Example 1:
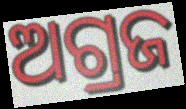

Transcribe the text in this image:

ଅଗ୍ରଜ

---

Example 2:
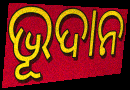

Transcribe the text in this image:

ଭୂଦାନ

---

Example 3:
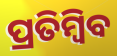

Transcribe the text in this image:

ପ୍ରତିମ୍ବିବ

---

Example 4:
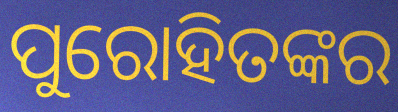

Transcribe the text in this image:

ପୁରୋହିତଙ୍କର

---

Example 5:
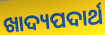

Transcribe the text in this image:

ଖାଦ୍ୟପଦାର୍ଥ